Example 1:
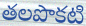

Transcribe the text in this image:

తలపొకటి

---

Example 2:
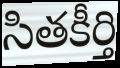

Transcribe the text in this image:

సితకీర్తి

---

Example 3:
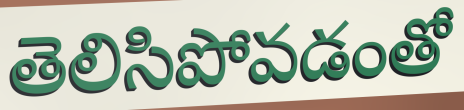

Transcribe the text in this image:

తెలిసిపోవడంతో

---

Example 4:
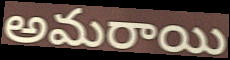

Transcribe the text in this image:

అమరాయి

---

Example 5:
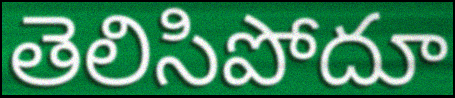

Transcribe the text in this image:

తెలిసిపోదూ